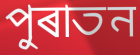
পুৰাতন